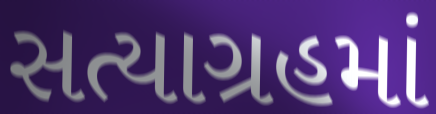
સત્યાગ્રહમાં